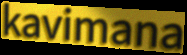
kavimana